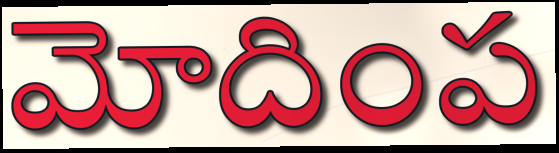
మోదింప